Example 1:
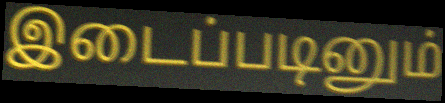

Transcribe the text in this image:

இடைப்படினும்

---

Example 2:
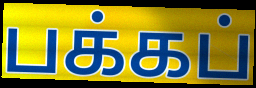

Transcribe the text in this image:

பக்கப்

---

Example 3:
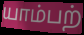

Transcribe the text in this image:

யாம்பற்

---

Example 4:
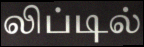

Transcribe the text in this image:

லிப்டில்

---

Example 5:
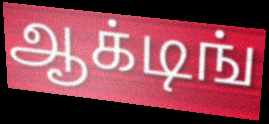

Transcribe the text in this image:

ஆக்டிங்